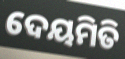
ଦେୟମିତି